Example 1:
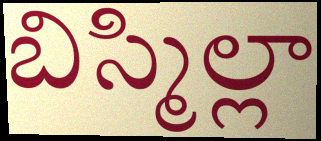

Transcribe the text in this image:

బిస్మిల్లా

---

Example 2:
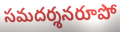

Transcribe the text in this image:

సమదర్శనరూపో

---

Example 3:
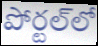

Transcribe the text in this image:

పోర్టల్‌లో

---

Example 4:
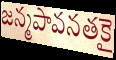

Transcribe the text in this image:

జన్మపావనతకై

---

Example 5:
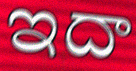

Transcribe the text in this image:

ఇదా